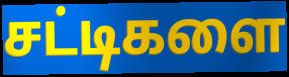
சட்டிகளை